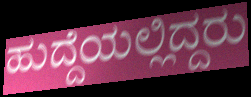
ಹುದ್ದೆಯಲ್ಲಿದ್ದರು